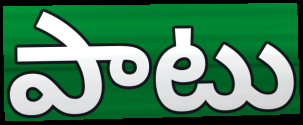
పాటు